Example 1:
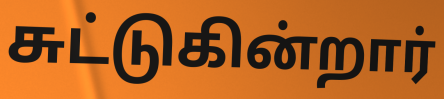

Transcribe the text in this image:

சுட்டுகின்றார்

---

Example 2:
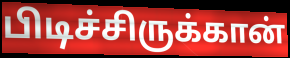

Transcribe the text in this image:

பிடிச்சிருக்கான்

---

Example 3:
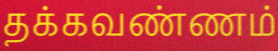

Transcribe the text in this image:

தக்கவண்ணம்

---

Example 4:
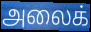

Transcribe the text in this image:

அலைக்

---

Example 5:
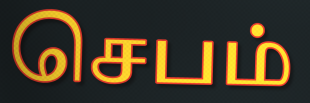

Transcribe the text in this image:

செபம்